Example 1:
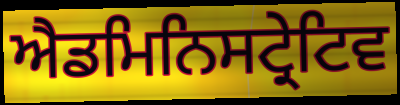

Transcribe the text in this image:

ਐਡਮਿਨਿਸਟ੍ਰੇਟਿਵ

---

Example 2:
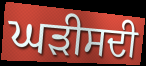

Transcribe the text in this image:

ਘੜੀਸਦੀ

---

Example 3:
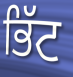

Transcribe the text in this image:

ਭਿੱਟ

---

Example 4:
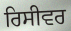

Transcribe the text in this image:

ਰਿਸੀਵਰ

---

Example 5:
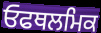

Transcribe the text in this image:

ਓਫਥਲਮਿਕ